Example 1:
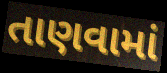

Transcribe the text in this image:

તાણવામાં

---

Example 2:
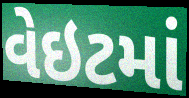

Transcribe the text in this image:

વેઇટમાં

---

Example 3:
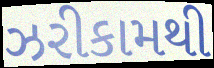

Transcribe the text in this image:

ઝરીકામથી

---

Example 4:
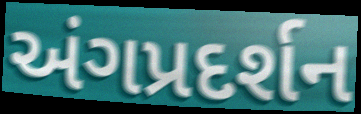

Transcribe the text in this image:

અંગપ્રદર્શન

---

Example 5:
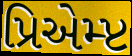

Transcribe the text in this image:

પ્રિએમ્પ્ટ